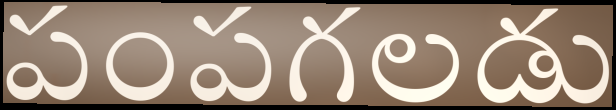
పంపగలడు